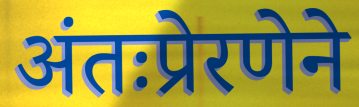
अंतःप्रेरणेने